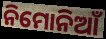
ନିମୋନିଆଁ